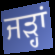
ਜੜ੍ਹਾਂ